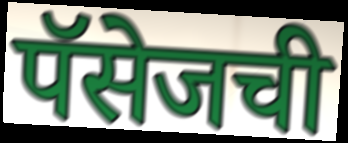
पॅसेजची